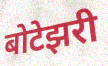
बोटेझरी